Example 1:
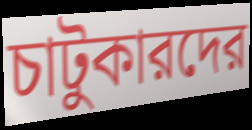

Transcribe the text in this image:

চাটুকারদের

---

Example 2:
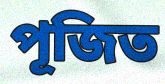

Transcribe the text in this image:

পূজিত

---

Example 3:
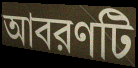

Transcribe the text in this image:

আবরণটি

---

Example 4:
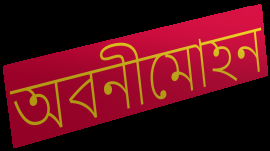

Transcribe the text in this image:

অবনীমোহন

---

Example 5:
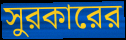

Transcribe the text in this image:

সুরকারের